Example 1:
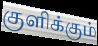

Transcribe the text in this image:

குளிக்கும்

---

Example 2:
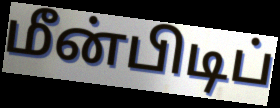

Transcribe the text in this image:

மீன்பிடிப்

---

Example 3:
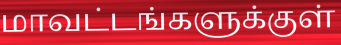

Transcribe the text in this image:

மாவட்டங்களுக்குள்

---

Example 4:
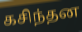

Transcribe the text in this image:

கசிந்தன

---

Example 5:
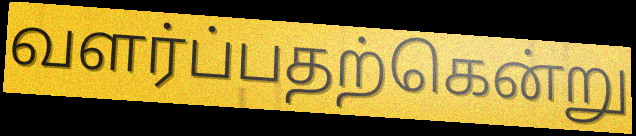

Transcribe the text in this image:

வளர்ப்பதற்கென்று